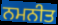
ਨਮਨੀਤ